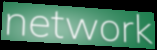
network